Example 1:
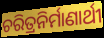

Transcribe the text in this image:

ଚରିତ୍ରନିର୍ମାଣାର୍ଥୀ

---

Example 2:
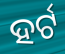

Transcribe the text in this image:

ହର୍ଟ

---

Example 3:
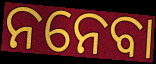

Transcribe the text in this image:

ନନେବା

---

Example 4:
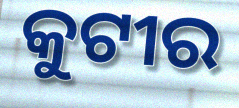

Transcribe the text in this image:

କୁଟୀର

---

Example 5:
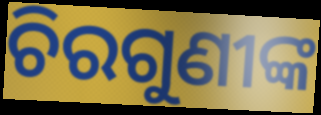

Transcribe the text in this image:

ଚିରଗୁଣୀଙ୍କ